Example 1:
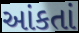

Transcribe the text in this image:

આંકતાં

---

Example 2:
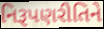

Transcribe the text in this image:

નિરૂપણરીતિને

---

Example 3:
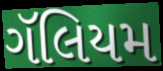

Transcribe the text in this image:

ગૅલિયમ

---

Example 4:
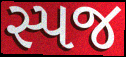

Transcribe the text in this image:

સ્પજ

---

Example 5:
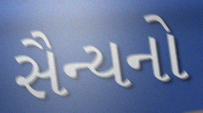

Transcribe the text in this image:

સૈન્યનો